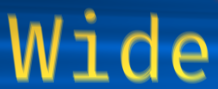
Wide